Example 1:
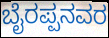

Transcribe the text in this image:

ಬೈರಪ್ಪನವರ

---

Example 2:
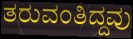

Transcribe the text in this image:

ತರುವಂತಿದ್ದವು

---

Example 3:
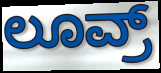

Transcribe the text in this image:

ಲೂವ್ರ್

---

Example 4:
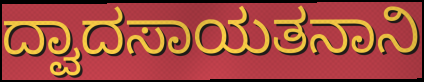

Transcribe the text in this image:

ದ್ವಾದಸಾಯತನಾನಿ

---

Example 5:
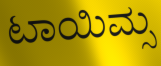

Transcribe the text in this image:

ಟಾಯಿಮ್ಸ